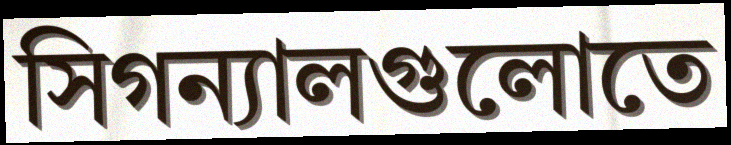
সিগন্যালগুলোতে